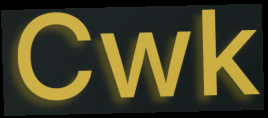
Cwk